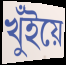
খুঁইয়ে